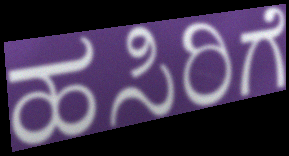
ಹಸಿರಿಗೆ